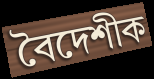
বৈদেশীক